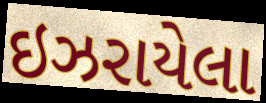
ઇઝરાયેલા